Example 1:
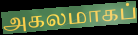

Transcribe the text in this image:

அகலமாகப்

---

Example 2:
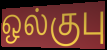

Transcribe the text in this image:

ஒல்குபு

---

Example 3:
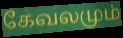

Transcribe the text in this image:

கேவலமும்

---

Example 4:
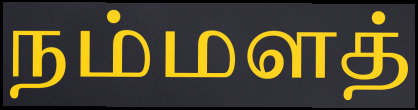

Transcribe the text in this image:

நம்மளத்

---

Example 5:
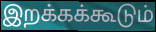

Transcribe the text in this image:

இறக்கக்கூடும்